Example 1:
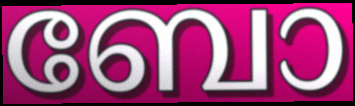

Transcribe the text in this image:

ബോ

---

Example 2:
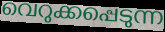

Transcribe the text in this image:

വെറുക്കപ്പെടുന്ന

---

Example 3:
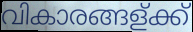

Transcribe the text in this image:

വികാരങ്ങള്ക്ക്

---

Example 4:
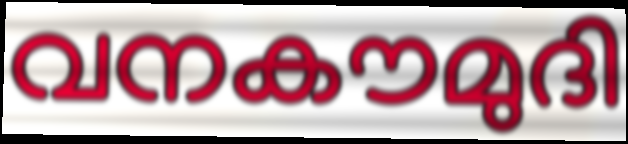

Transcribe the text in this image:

വനകൗമുദി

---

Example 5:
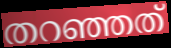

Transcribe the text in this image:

തറഞ്ഞത്